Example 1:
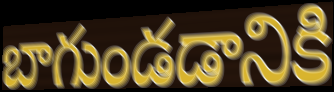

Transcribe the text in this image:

బాగుండడానికి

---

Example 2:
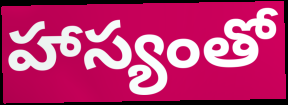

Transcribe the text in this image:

హాస్యంతో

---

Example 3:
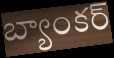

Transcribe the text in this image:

బ్యాంకర్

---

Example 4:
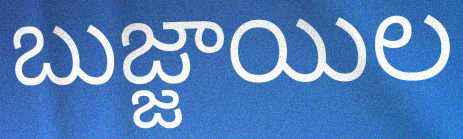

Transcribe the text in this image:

బుజ్జాయిల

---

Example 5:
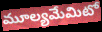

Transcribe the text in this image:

మూల్యమేమిటో